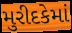
મુરીદકેમાં